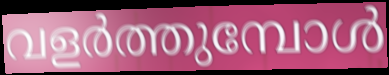
വളർത്തുമ്പോൾ